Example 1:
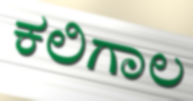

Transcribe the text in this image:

ಕಲಿಗಾಲ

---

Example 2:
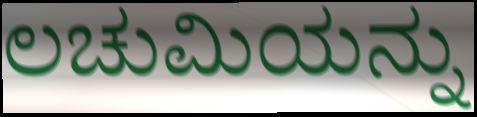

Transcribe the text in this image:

ಲಚುಮಿಯನ್ನು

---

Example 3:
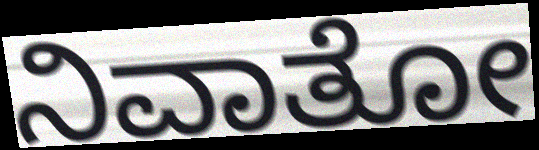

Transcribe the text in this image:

ನಿವಾತೋ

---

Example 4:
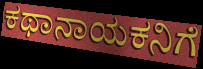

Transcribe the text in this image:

ಕಥಾನಾಯಕನಿಗೆ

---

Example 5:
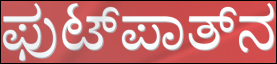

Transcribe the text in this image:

ಫುಟ್‌ಪಾತ್‌ನ